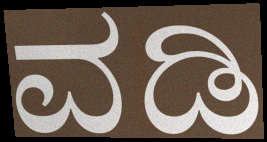
ವಡಿ